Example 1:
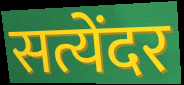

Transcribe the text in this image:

सत्येंदर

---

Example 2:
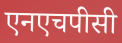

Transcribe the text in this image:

एनएचपीसी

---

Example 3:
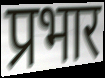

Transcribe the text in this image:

प्रभार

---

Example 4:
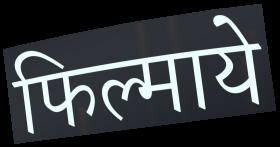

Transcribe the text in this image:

फिल्माये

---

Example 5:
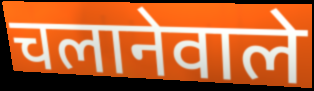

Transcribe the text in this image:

चलानेवाले